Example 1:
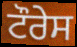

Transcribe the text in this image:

ਟੌਰੇਸ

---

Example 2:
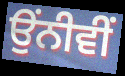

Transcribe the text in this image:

ਉੰਨੀਵੀਂ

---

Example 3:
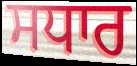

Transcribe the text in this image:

ਸਧਾਰ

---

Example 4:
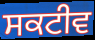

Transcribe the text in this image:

ਸਕਟੀਵ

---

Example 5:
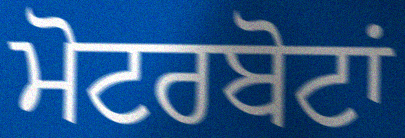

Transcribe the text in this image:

ਮੋਟਰਬੋਟਾਂ